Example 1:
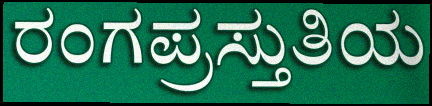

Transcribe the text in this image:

ರಂಗಪ್ರಸ್ತುತಿಯ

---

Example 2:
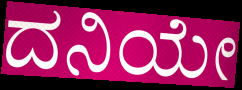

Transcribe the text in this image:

ದನಿಯೇ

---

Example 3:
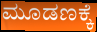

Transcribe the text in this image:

ಮೂಡಣಕ್ಕೆ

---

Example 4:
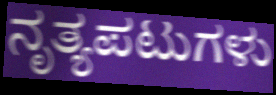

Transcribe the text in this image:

ನೃತ್ಯಪಟುಗಳು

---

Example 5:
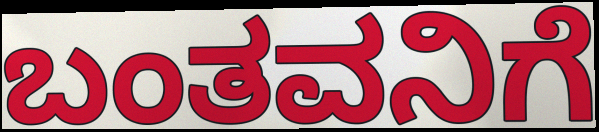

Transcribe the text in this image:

ಬಂತವನಿಗೆ